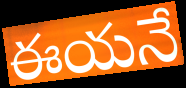
ఈయనే